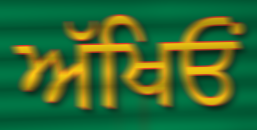
ਅੱਖਿਓਂ